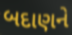
બદાણને